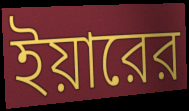
ইয়ারের